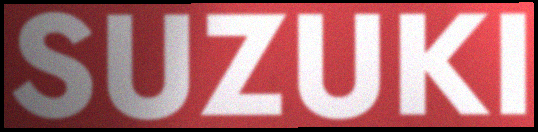
SUZUKI